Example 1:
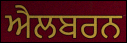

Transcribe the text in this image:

ਐਲਬਰਨ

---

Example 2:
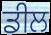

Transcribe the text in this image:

ਡੀਲ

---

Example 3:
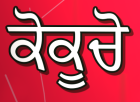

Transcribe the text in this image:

ਕੋਕੂਚੋ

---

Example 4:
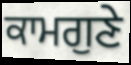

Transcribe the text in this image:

ਕਾਮਗੁਣੇ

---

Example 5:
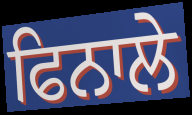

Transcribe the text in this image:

ਫਿਨਾਲੇ